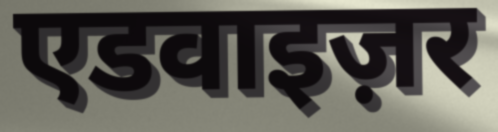
एडवाइज़र